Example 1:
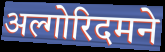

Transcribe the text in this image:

अल्गोरिदमने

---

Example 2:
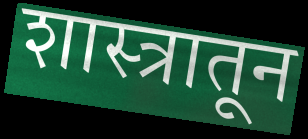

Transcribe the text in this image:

शास्त्रातून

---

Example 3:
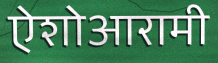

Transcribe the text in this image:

ऐशोआरामी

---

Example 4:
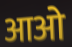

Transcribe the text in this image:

आओ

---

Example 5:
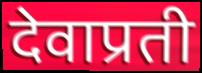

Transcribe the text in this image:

देवाप्रती